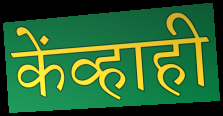
केंव्हाही